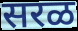
सरळ